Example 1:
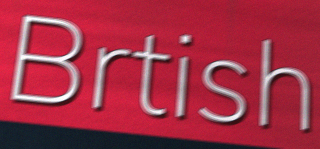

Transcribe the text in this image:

Brtish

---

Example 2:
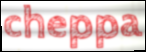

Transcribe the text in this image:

cheppa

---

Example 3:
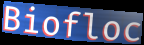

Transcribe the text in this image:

Biofloc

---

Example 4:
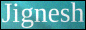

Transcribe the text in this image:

Jignesh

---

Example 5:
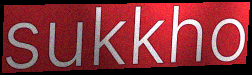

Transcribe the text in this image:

sukkho